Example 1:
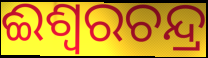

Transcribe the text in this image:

ଈଶ୍ୱରଚନ୍ଦ୍ର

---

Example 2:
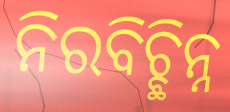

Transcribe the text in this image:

ନିରବିଚ୍ଛିନ୍ନ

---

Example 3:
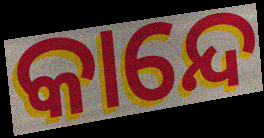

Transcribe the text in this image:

କାନ୍ଦେ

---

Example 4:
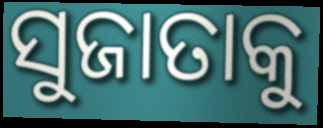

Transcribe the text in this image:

ସୁଜାତାକୁ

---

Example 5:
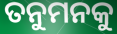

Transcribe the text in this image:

ତନୁମନକୁ